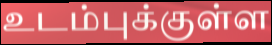
உடம்புக்குள்ள